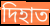
দিহাত